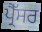
ਪ੍ਰੈੱਸਰ